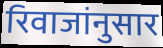
रिवाजांनुसार